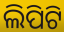
ଲିପିଟି